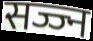
सज्ज्न